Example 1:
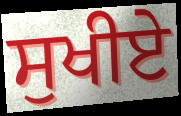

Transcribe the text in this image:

ਸੁਖੀਏ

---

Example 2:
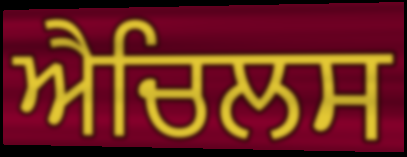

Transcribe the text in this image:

ਐਚਿਲਸ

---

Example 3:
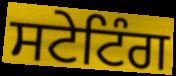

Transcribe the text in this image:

ਸਟੇਟਿੰਗ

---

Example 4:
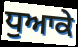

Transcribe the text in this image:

ਧੁਆਕੇ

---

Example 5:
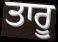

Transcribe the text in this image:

ਤਾਰੂ